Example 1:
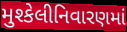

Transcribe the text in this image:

મુશ્કેલીનિવારણમાં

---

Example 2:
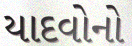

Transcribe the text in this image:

યાદવોનો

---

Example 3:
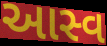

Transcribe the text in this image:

આસ્વ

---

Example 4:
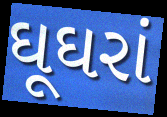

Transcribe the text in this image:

ઘૂઘરાં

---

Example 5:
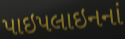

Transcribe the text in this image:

પાઇપલાઇનનાં